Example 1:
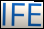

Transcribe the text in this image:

IFE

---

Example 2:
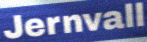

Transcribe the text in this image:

Jernvall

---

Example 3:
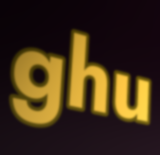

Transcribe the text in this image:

ghu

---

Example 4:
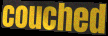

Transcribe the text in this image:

couched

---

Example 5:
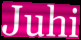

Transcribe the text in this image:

Juhi